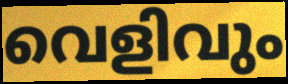
വെളിവും